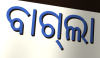
ବାଗ୍‍ଲା